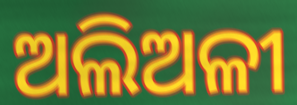
ଅଲିଅଳୀ